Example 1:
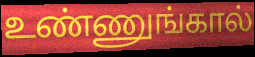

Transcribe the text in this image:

உண்ணுங்கால்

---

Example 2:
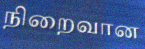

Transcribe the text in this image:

நிறைவான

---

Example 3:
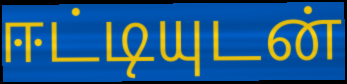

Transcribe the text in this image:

ஈட்டியுடன்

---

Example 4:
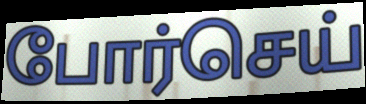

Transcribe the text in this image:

போர்செய்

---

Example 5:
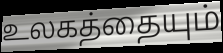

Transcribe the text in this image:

உலகத்தையும்